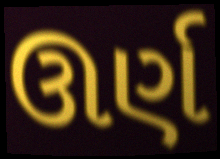
ઊર્ણ